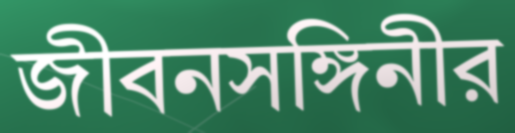
জীবনসঙ্গিনীর